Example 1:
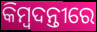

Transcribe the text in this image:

କିମ୍ବଦନ୍ତୀରେ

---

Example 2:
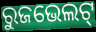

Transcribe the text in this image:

ରୁଜଭେଲଟ୍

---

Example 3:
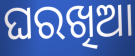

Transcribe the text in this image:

ଘରଖିଆ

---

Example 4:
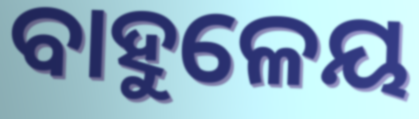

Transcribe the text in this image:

ବାହୁଳେୟ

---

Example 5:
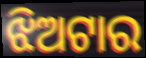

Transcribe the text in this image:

ଝିଅଟାର